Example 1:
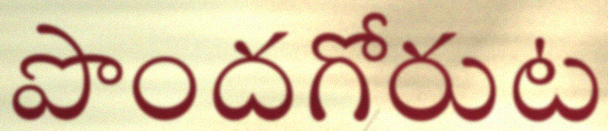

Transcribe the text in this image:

పొందగోరుట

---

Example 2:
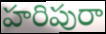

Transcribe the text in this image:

హరిపురా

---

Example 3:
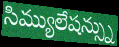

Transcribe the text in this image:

సిమ్యులేషన్స్ను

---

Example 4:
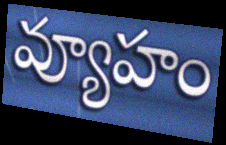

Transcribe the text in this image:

వ్యూహం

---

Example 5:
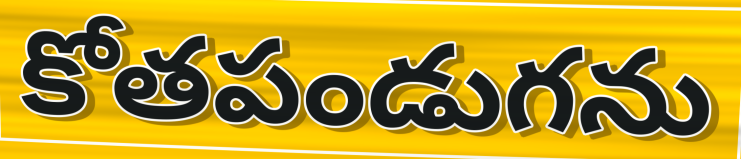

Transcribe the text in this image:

కోతపండుగను